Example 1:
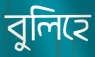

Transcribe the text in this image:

বুলিহে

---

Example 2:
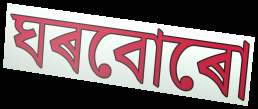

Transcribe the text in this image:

ঘৰবোৰো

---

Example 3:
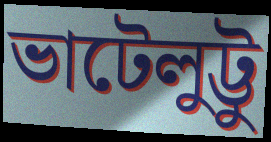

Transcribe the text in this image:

ভাটেলুট্টু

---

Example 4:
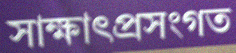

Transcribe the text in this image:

সাক্ষাৎপ্ৰসংগত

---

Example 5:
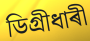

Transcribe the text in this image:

ডিগ্ৰীধাৰী